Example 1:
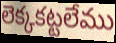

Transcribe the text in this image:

లెక్కకట్టలేము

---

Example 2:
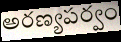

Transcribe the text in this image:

అరణ్యపర్వం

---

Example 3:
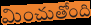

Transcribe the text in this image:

మించుతోంది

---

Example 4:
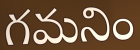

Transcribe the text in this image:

గమనిం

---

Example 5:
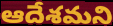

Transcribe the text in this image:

ఆదేశమని